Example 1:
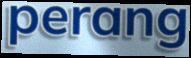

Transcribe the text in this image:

perang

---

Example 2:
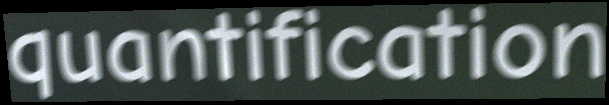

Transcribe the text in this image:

quantification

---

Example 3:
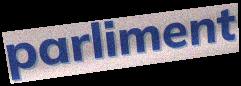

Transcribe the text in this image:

parliment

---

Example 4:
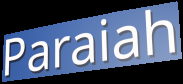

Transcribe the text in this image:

Paraiah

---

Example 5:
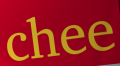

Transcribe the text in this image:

chee